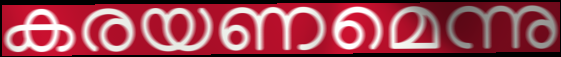
കരയണമെന്നു